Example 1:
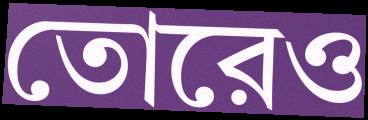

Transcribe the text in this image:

তোরেও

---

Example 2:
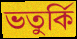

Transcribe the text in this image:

ভতুর্কি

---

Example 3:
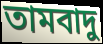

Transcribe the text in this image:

তামবাদু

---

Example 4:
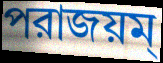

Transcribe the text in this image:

পরাজয়ম্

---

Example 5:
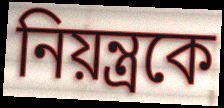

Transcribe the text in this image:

নিয়ন্ত্রকে